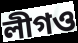
লীগও